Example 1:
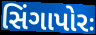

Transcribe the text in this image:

સિંગાપોરઃ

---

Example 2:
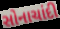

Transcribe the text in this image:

સોનાચાંદી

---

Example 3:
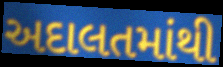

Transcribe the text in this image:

અદાલતમાંથી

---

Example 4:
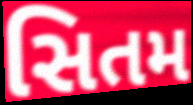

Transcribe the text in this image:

સિતમ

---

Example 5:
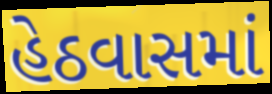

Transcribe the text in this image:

હેઠવાસમાં